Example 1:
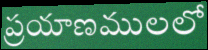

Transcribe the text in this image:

ప్రయాణములలో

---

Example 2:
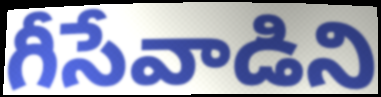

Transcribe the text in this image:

గీసేవాడిని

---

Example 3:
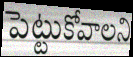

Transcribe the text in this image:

పెట్టుకోవాలని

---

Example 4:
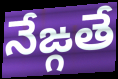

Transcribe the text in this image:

నేఙ్గతే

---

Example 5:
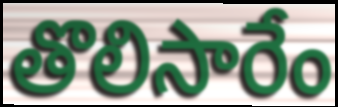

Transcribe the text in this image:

తొలిసారేం